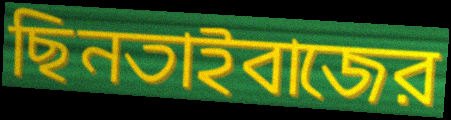
ছিনতাইবাজের